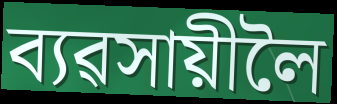
ব্যৱসায়ীলৈ